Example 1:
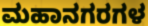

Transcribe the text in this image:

ಮಹಾನಗರಗಳ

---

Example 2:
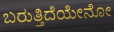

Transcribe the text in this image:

ಬರುತ್ತಿದೆಯೇನೋ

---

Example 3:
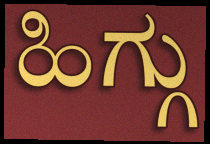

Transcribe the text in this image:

ಹಿಗ್ಗು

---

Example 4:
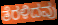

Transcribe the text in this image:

ತೆರಳಿದವು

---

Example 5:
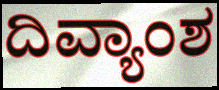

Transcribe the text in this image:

ದಿವ್ಯಾಂಶ